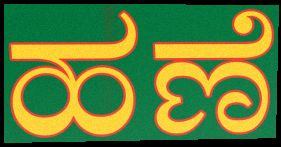
ಹಣೆ